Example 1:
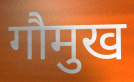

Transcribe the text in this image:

गौमुख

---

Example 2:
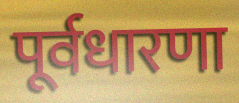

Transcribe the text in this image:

पूर्वधारणा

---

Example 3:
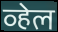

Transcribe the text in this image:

व्हेल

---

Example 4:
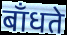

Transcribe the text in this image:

बाँधते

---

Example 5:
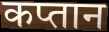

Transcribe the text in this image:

कप्‍तान